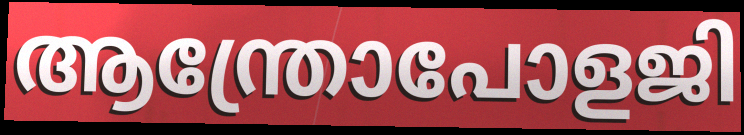
ആന്ത്രോപോളജി